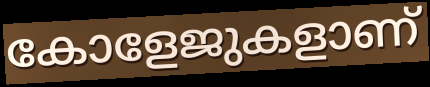
കോളേജുകളാണ്